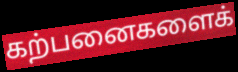
கற்பனைகளைக்